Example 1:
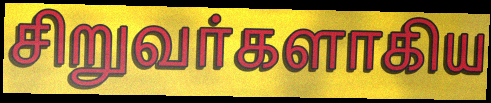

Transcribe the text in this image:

சிறுவர்களாகிய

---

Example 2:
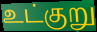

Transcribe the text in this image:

உட்குறு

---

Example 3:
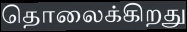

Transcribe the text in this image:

தொலைக்கிறது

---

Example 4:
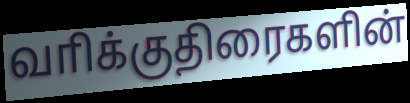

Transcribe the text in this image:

வரிக்குதிரைகளின்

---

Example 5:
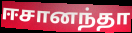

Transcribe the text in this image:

ஈசானந்தா